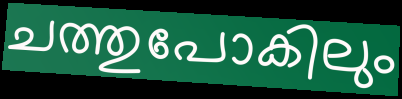
ചത്തുപോകിലും